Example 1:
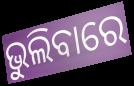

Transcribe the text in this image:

ଭୁଲିବାରେ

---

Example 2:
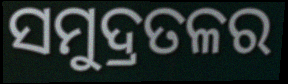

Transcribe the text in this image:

ସମୁଦ୍ରତଳର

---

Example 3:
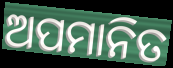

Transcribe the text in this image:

ଅପମାନିତ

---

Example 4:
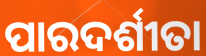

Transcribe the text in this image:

ପାରଦର୍ଶୀତା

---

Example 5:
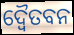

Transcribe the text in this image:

ଦ୍ୱୈତବନ